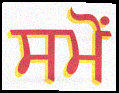
ਸਮੋਂ